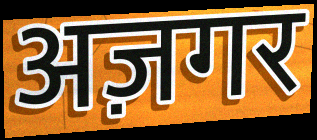
अज़गर